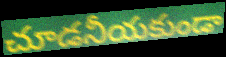
చూడనీయకుండా